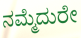
ನಮ್ಮೆದುರೇ